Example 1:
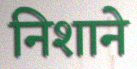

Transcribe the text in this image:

निशाने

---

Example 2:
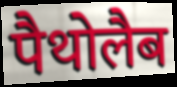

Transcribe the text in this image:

पैथोलैब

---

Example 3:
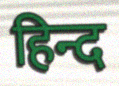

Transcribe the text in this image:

हिन्द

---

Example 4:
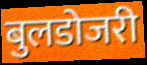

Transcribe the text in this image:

बुलडोजरी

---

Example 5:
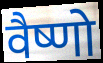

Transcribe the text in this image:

वैष्‍णो